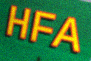
HFA